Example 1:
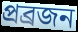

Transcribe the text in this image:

প্ৰব্ৰজন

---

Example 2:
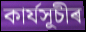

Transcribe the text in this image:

কাৰ্যসূচীৰ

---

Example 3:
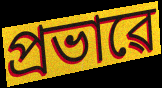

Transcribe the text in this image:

প্ৰভাৱে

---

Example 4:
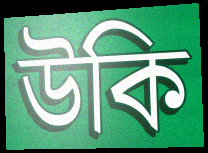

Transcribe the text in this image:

উকি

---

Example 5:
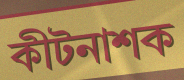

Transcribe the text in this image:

কীটনাশক